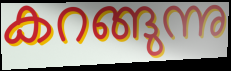
കറങ്ങുന്നു